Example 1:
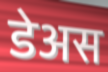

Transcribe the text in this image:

डेअस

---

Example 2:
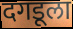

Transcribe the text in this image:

दगडूला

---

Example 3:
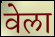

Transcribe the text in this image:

वेला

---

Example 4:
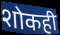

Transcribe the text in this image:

शोकही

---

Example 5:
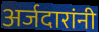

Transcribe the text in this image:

अर्जदारांनी